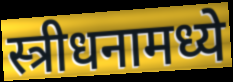
स्त्रीधनामध्ये